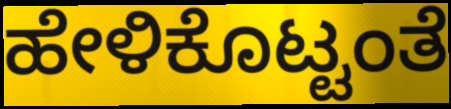
ಹೇಳಿಕೊಟ್ಟಂತೆ